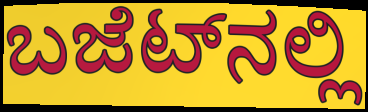
ಬಜೆಟ್‌ನಲ್ಲಿ